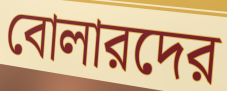
বোলারদের